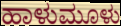
ಹಾಳುಮೂಳು